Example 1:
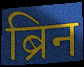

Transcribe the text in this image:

ब्रिन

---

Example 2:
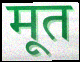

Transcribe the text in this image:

मूत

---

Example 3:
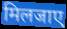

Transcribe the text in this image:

मिलजाए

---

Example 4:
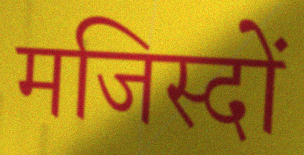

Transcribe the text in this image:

मजिस्दों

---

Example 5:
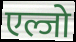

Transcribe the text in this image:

एल्जो